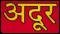
अदूर